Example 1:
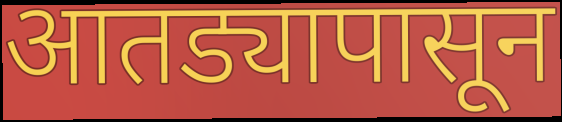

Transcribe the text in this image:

आतड्यापासून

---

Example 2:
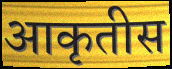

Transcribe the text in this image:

आकृतीस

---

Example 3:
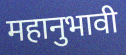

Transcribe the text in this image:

महानुभावी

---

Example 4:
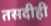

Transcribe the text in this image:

तसदीही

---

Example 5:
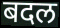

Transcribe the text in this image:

बदल